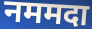
नममदा